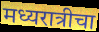
मध्यरात्रीचा